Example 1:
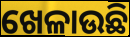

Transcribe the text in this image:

ଖେଳାଉଛି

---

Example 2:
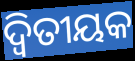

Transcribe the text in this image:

ଦ୍ୱିତୀୟକ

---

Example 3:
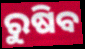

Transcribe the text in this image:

ରୁଷିବ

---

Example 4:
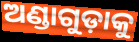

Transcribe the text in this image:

ଅଣ୍ଡାଗୁଡ଼ାକୁ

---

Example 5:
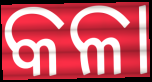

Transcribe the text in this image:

କଳା